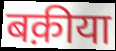
बक़ीया